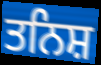
ਤਨਿਸ਼